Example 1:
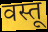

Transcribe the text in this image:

वस्तू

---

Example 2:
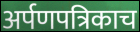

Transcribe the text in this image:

अर्पणपत्रिकाच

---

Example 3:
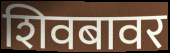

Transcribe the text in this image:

शिवबावर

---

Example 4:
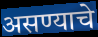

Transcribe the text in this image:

असण्याचे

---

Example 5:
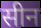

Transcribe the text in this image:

सीन